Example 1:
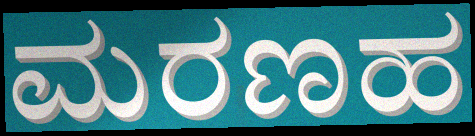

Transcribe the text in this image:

ಮರಣಹ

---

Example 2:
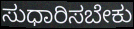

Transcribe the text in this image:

ಸುಧಾರಿಸಬೇಕು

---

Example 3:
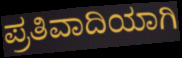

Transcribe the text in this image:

ಪ್ರತಿವಾದಿಯಾಗಿ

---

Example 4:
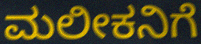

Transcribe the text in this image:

ಮಲೀಕನಿಗೆ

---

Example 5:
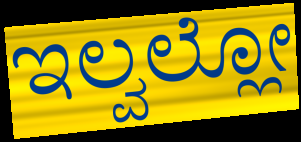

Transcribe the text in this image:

ಇಲ್ವಲ್ಲೋ